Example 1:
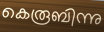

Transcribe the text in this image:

കെരൂബിന്നു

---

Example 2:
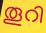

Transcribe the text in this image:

തൂറി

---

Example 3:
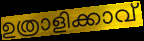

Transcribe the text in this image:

ഉത്രാളിക്കാവ്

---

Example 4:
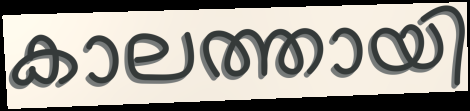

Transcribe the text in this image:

കാലത്തായി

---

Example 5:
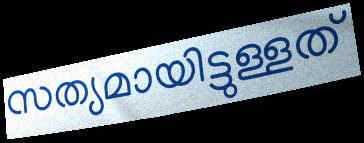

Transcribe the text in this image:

സത്യമായിട്ടുള്ളത്